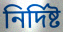
নির্দিষ্ট